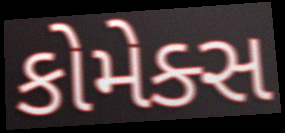
કોમેક્સ